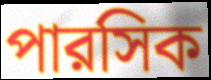
পারসিক